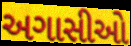
અગાસીઓ